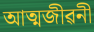
আত্মজীৱনী